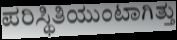
ಪರಿಸ್ಥಿತಿಯುಂಟಾಗಿತ್ತು